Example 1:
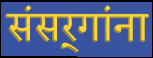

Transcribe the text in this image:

संसर्गांना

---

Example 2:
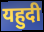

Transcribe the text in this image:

यहुदी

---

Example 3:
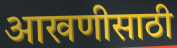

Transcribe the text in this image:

आखणीसाठी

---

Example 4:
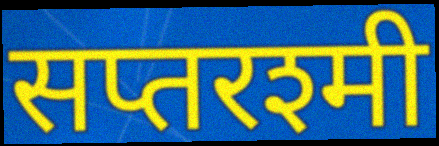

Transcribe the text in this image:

सप्तरश्मी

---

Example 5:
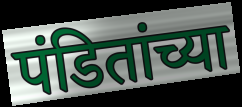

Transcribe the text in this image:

पंडितांच्या